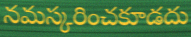
నమస్కరించకూడదు